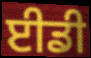
ਈਡੀ